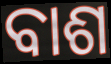
ବାଶ